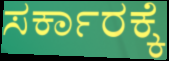
ಸರ್ಕಾರಕ್ಕೆ